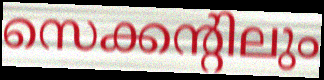
സെക്കന്റിലും